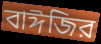
বাঈজির